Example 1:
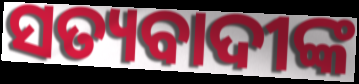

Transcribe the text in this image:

ସତ୍ୟବାଦୀଙ୍କ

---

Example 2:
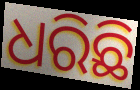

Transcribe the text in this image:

ଧରିଛି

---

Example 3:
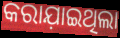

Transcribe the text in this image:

କରାଯ଼ାଇଥିଲା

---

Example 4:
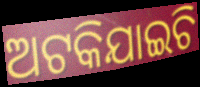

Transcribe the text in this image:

ଅଟକିଯାଇଚି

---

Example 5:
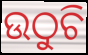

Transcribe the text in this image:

ଉଠୁଚି